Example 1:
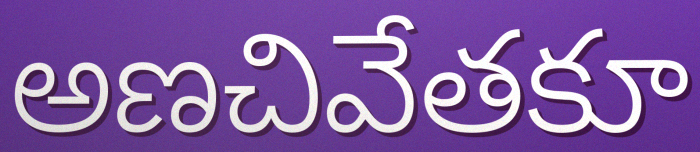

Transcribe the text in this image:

అణచివేతకూ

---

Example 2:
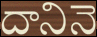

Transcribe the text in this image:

దానినె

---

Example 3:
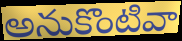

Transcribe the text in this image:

అనుకొంటివా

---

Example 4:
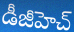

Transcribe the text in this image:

డీజీహెచ్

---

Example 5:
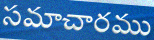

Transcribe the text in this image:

సమాచారము